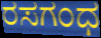
ರಸಗಂಧ